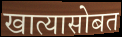
खात्यासोबत